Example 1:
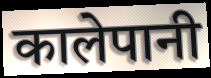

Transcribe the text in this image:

कालेपानी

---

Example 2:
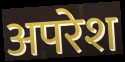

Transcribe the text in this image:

अपरेश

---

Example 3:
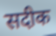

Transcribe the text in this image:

सदीक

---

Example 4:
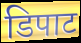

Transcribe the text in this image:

डिपाट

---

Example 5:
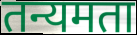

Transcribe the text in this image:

तन्यमता